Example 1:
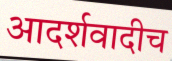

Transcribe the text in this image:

आदर्शवादीच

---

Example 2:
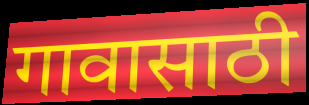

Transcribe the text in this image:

गावासाठी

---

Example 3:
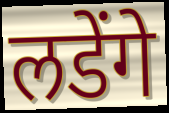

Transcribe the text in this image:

लडेंगे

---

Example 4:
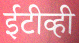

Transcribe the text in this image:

ईटीव्ही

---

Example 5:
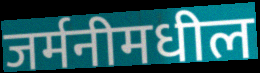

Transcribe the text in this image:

जर्मनीमधील